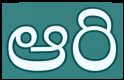
ఆరి